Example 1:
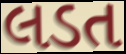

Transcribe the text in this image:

લડત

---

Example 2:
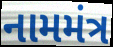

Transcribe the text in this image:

નામમંત્ર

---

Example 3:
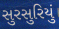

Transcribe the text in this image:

સુરસુરિયું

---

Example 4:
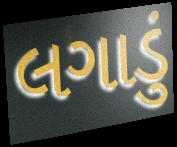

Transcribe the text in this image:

લગાડું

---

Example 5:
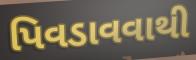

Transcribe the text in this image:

પિવડાવવાથી